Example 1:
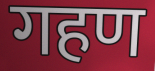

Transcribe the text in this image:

गहण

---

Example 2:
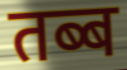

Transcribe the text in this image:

तब्ब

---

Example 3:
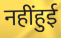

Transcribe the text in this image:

नहींहुई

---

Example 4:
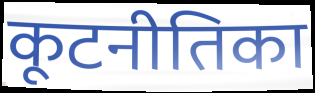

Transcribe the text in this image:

कूटनीतिका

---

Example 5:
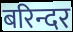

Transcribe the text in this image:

बरिन्दर